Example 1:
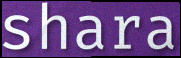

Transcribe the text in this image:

shara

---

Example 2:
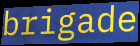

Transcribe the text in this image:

brigade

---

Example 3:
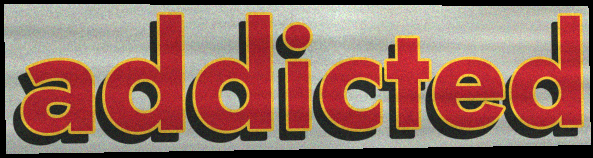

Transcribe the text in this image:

addicted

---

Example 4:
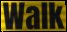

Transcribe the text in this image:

Walk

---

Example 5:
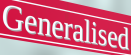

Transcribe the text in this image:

Generalised